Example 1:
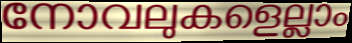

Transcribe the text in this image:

നോവലുകളെല്ലാം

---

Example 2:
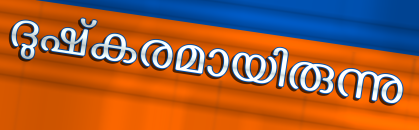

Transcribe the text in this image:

ദുഷ്‌കരമായിരുന്നു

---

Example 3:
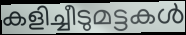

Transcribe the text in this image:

കളിച്ചീടുമട്ടകൾ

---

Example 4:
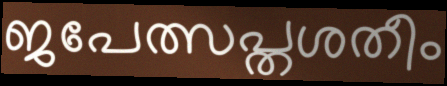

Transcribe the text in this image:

ജപേത്സപ്തശതീം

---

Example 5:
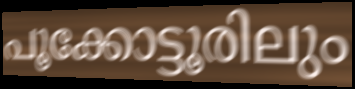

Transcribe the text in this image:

പൂക്കോട്ടൂരിലും